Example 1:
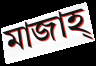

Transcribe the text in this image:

মাজাহ্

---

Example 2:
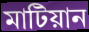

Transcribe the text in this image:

মাটিয়ান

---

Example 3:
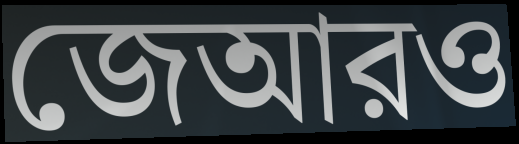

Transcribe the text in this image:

জেআরও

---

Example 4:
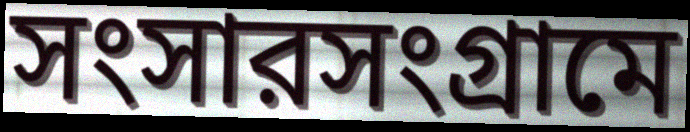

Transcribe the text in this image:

সংসারসংগ্রামে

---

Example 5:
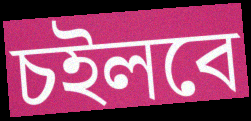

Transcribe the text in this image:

চইলবে